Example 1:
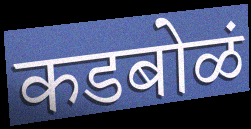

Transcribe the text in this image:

कडबोळं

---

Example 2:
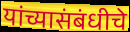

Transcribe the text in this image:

यांच्यासंबंधीचे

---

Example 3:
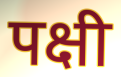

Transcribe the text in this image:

पक्षी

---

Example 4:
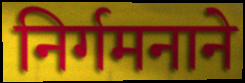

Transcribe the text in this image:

निर्गमनाने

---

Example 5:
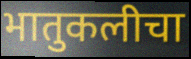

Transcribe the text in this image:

भातुकलीचा